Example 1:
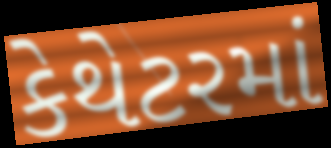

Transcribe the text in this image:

કેથેટરમાં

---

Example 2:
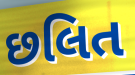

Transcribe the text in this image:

છલિત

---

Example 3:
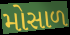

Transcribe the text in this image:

મોસાળ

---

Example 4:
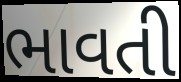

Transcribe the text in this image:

ભાવતી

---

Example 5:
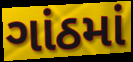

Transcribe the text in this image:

ગાંઠમાં